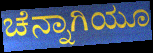
ಚೆನ್ನಾಗಿಯೂ